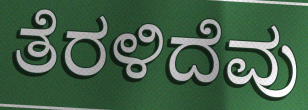
ತೆರಳಿದೆವು